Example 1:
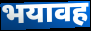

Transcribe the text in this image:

भयावह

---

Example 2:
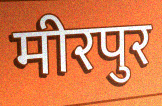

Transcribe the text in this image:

मीरपुर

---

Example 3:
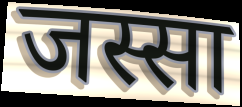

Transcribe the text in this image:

जस्सा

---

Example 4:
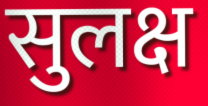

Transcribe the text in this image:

सुलक्ष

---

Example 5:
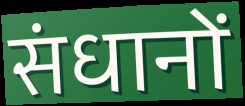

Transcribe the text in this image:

संधानों